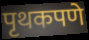
पृथकपणे